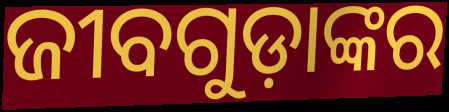
ଜୀବଗୁଡ଼ାଙ୍କର